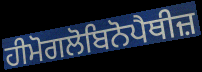
ਹੀਮੋਗਲੋਬਿਨੋਪੈਥੀਜ਼